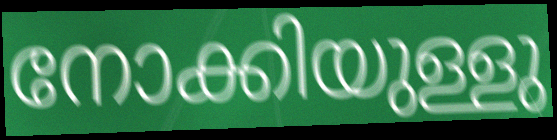
നോക്കിയുള്ളു